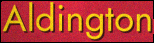
Aldington